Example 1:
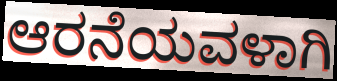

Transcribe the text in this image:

ಆರನೆಯವಳಾಗಿ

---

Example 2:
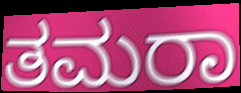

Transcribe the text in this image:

ತಮರಾ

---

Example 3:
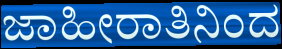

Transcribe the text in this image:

ಜಾಹೀರಾತಿನಿಂದ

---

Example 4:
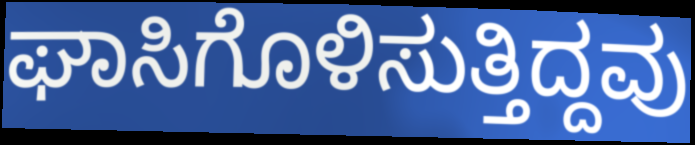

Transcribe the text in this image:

ಘಾಸಿಗೊಳಿಸುತ್ತಿದ್ದವು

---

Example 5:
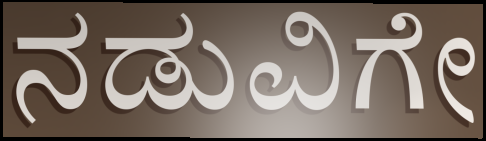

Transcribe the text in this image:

ನಡುವಿಗೇ